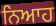
ਨਿਆਹ